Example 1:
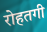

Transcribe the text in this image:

रोहतगी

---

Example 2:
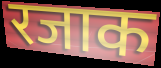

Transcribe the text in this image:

रजाक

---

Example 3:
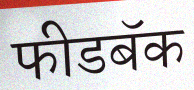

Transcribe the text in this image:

फीडबॅक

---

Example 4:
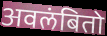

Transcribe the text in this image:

अवलंबितो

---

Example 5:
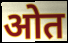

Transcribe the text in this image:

ओत